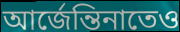
আর্জেন্তিনাতেও